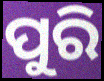
ପୁରି